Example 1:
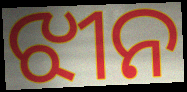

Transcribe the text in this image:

ଝୀନ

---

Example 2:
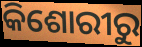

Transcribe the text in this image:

କିଶୋରୀରୁ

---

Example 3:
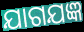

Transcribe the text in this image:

ଯାଗଯଜ୍ଞ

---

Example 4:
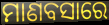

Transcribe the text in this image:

ମାଣବସାରେ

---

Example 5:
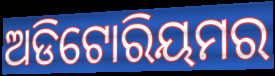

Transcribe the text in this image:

ଅଡିଟୋରିୟମର